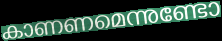
കാണണമെന്നുണ്ടോ